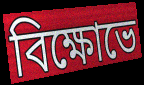
বিক্ষোভে